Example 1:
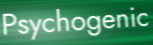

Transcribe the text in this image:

Psychogenic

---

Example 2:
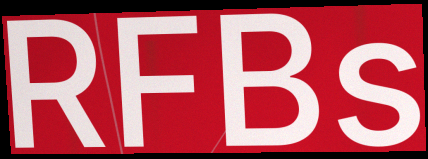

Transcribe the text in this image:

RFBs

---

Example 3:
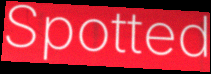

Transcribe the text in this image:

Spotted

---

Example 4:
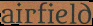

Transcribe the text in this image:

airfield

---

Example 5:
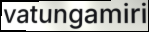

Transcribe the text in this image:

vatungamiri